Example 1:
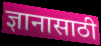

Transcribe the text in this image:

ज्ञानासाठी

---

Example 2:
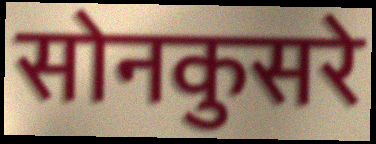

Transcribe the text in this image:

सोनकुसरे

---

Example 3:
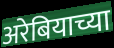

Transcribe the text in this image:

अरेबियाच्या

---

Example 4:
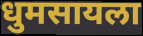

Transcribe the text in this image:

धुमसायला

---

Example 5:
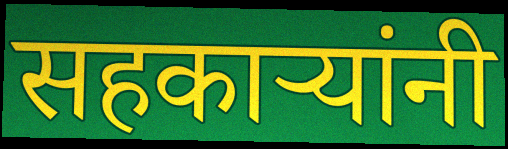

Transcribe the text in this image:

सहकाऱ्यांनी